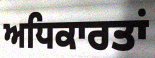
ਅਧਿਕਾਰਤਾਂ